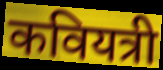
कवियत्री